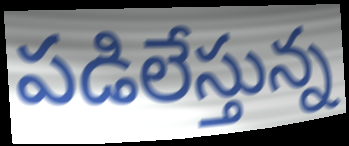
పడిలేస్తున్న